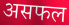
असफल